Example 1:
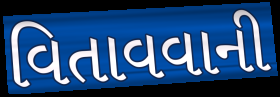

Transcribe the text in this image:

વિતાવવાની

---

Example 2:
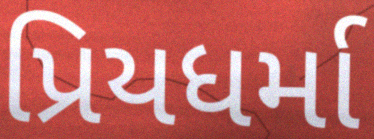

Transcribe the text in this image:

પ્રિયધર્મા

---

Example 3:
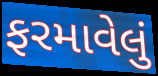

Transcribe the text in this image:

ફરમાવેલું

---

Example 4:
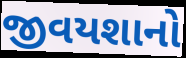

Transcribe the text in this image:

જીવયશાનો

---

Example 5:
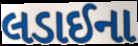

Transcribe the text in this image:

લડાઈના